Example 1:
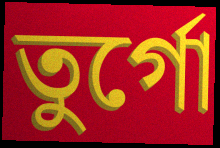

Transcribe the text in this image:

তুর্গো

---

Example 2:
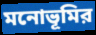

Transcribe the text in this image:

মনোভূমির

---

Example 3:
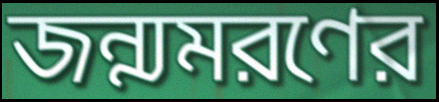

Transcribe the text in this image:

জন্মমরণের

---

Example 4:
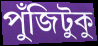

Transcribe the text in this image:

পুঁজিটুকু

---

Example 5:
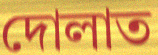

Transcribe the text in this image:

দোলাত